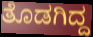
ತೊಡಗಿದ್ದ